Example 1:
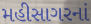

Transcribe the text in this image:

મહીસાગરનાં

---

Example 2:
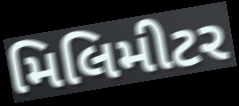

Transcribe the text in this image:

મિલિમીટર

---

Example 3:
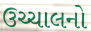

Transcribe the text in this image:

ઉચ્ચાલનો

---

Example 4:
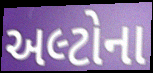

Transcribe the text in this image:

અલ્ટોના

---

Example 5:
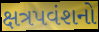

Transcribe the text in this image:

ક્ષત્રપવંશનો